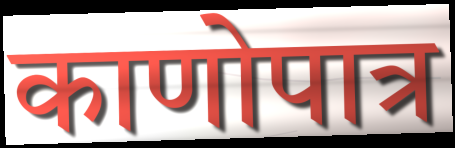
काणोपात्र